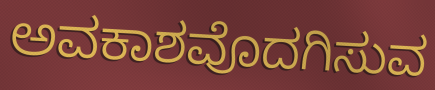
ಅವಕಾಶವೊದಗಿಸುವ